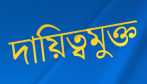
দায়িত্বমুক্ত